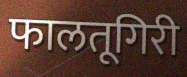
फालतूगिरी